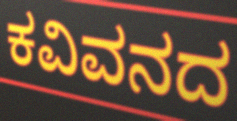
ಕವಿವನದ